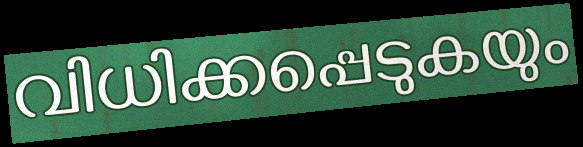
വിധിക്കപ്പെടുകയും